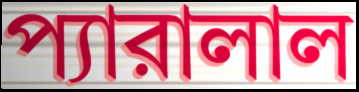
প্যারালাল